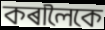
কৰালৈকে